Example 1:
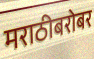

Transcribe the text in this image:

मराठीबरोबर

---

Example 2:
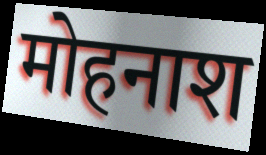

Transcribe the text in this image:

मोहनाश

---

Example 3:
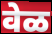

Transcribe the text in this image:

वेळ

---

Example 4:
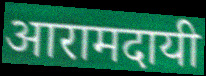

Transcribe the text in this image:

आरामदायी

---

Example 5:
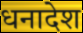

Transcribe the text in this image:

धनादेश